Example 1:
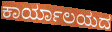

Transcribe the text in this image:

ಕಾರ್ಯಾಲಯದ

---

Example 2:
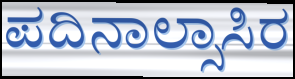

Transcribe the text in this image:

ಪದಿನಾಲ್ಸಾಸಿರ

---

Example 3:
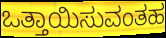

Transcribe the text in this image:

ಒತ್ತಾಯಿಸುವಂತಹ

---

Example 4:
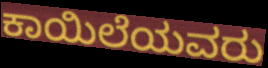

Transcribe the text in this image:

ಕಾಯಿಲೆಯವರು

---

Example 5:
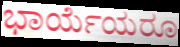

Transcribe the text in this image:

ಭಾರ್ಯೆಯರೂ